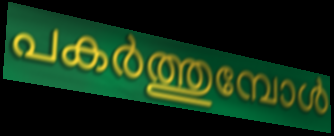
പകർത്തുമ്പോൾ